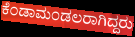
ಕೆಂಡಾಮಂಡಲರಾಗಿದ್ದರು